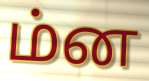
ம்ன